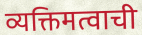
व्यक्तिमत्वाची